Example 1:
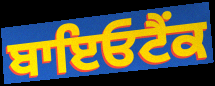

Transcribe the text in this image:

ਬਾਇਓਟੈਂਕ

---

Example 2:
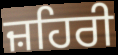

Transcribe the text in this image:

ਜ਼ਹਿਰੀ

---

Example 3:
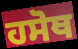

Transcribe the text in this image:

ਹਸੋਥ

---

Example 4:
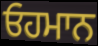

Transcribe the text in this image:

ਓਹਮਾਨ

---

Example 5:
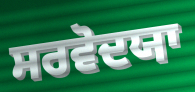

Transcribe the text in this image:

ਸਰਵੋਦਯਾ